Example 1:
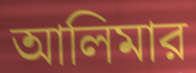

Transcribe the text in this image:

আলিমার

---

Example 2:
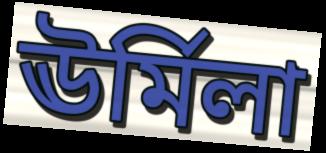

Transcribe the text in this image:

ঊর্মিলা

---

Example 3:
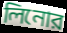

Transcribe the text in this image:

লিনোর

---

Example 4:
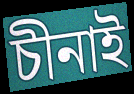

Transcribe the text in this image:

চীনাই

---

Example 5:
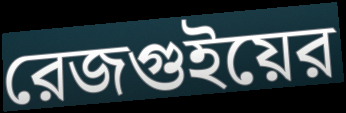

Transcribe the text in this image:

রেজগুইয়ের